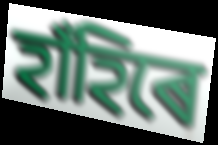
হাঁহিৰে